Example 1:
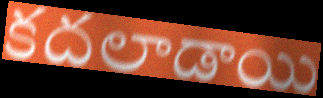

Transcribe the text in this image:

కదలాడాయి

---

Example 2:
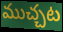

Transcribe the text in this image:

ముచ్చట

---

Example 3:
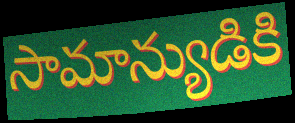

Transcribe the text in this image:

సామాన్యుడికి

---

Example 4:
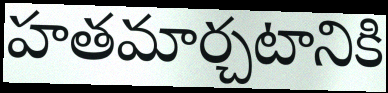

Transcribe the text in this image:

హతమార్చటానికి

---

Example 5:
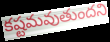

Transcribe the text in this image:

కష్టమవుతుందని